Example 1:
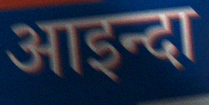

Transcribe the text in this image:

आइन्दा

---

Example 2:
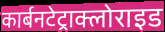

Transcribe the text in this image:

कार्बनटेट्राक्लोराइड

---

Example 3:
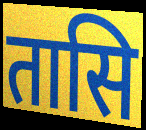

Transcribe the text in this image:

तासि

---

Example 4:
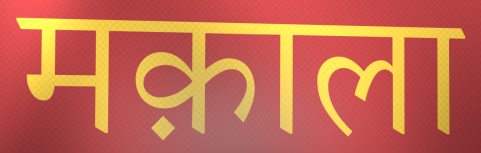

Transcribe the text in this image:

मक़ाला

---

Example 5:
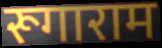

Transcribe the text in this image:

रूगाराम